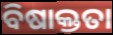
ବିଷାକ୍ତତା